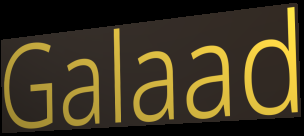
Galaad